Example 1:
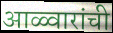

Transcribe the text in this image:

आळ्वारांची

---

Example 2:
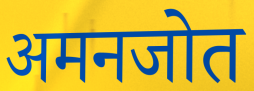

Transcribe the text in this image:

अमनजोत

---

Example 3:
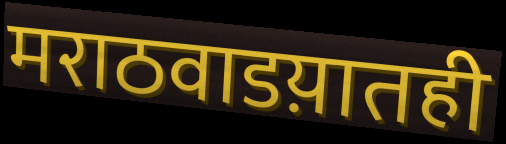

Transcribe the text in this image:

मराठवाडय़ातही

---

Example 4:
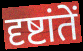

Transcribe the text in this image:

दृष्टांतें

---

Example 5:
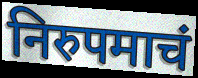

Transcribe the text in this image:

निरुपमाचं